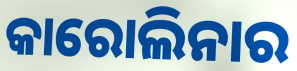
କାରୋଲିନାର